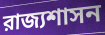
রাজ্যশাসন